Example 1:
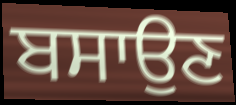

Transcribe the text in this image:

ਬਸਾਉਣ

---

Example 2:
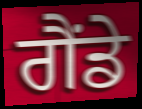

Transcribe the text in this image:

ਗੈਂਡੇ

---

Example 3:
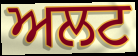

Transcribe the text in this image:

ਅਲਟ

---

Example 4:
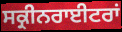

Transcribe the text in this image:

ਸਕ੍ਰੀਨਰਾਈਟਰਾਂ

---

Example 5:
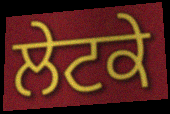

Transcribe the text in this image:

ਲੇਟਕੇ